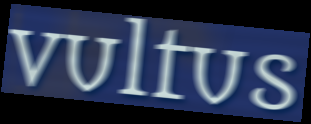
vultus